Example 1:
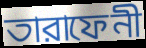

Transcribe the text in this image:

তারাফেনী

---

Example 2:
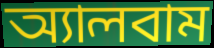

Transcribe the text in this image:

অ্যালবাম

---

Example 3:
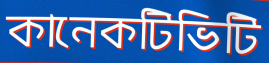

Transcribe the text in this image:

কানেকটিভিটি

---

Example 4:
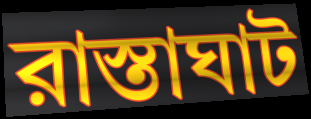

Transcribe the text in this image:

রাস্তাঘাট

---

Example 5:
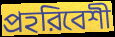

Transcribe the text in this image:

প্রহরিবেশী